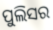
ପୁଲିସର